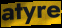
atyre